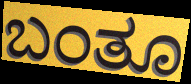
ಬಂತೂ